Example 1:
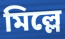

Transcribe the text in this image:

মিল্লে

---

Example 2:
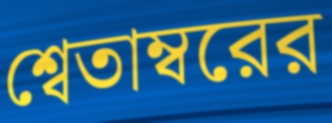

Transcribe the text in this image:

শ্বেতাম্বরের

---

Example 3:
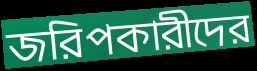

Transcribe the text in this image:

জরিপকারীদের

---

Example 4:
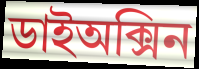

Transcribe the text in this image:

ডাইঅক্সিন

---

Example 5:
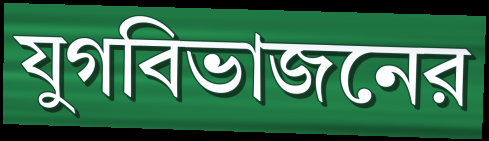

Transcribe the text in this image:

যুগবিভাজনের